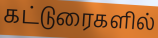
கட்டுரைகளில்